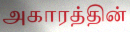
அகாரத்தின்